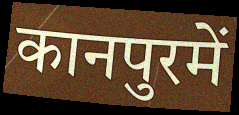
कानपुरमें